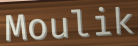
Moulik